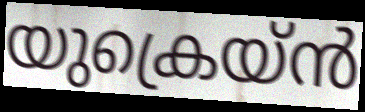
യുക്രെയ്ൻ